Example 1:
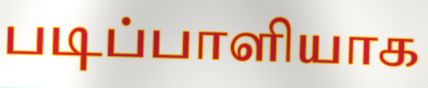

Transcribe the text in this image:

படிப்பாளியாக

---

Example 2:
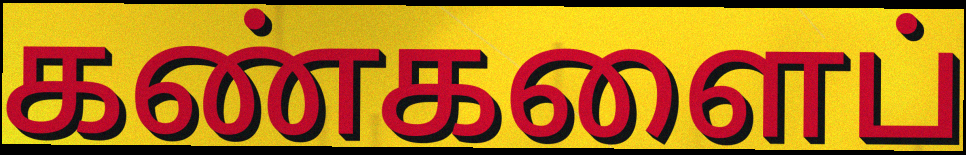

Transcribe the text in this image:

கண்களைப்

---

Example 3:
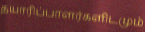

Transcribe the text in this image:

தயாரிப்பாளர்களிடமும்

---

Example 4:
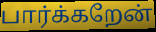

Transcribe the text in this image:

பார்க்கறேன்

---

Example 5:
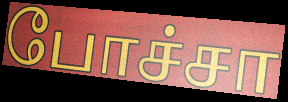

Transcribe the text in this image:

போச்சா